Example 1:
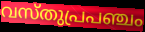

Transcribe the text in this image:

വസ്തുപ്രപഞ്ചം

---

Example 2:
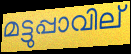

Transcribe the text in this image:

മട്ടുപ്പാവില്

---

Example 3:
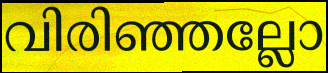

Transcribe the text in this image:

വിരിഞ്ഞല്ലോ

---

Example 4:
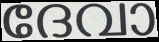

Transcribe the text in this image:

ദേവാ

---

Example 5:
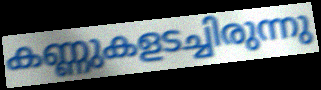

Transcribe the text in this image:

കണ്ണുകളടച്ചിരുന്നു